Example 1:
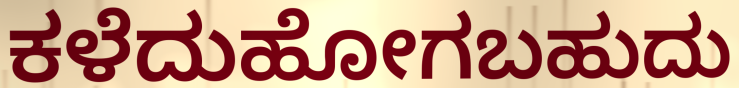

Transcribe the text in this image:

ಕಳೆದುಹೋಗಬಹುದು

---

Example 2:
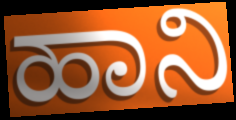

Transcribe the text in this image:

ಹಾನಿ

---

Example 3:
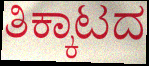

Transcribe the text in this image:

ತಿಕ್ಕಾಟದ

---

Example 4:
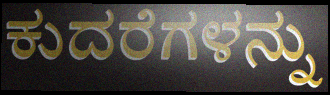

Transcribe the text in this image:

ಕುದರೆಗಳನ್ನು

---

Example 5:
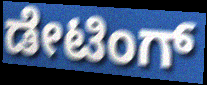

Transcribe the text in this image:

ಡೇಟಿಂಗ್